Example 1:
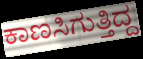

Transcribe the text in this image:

ಕಾಣಸಿಗುತ್ತಿದ್ದ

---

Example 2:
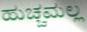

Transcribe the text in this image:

ಹುಚ್ಚಮಲ್ಲ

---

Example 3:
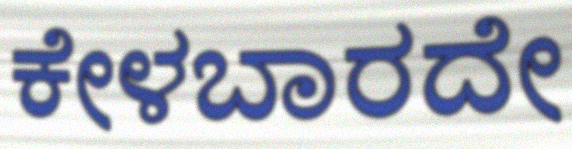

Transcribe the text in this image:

ಕೇಳಬಾರದೇ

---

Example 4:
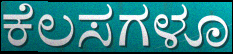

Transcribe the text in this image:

ಕೆಲಸಗಳೂ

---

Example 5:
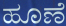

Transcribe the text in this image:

ಹೂಣೆ